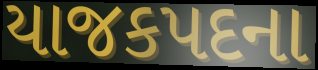
યાજકપદના